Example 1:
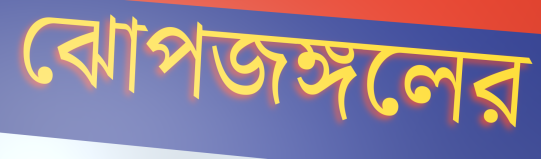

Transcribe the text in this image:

ঝোপজঙ্গলের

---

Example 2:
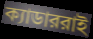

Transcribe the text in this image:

ক্যাডাররাই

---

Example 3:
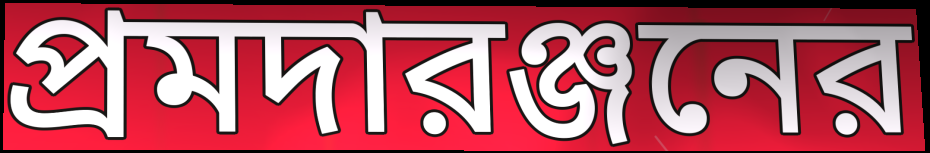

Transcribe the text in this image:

প্রমদারঞ্জনের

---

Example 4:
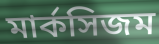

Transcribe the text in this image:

মার্কসিজম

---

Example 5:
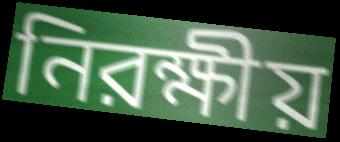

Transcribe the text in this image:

নিরক্ষীয়